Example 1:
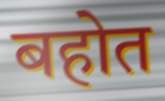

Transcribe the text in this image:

बहोत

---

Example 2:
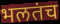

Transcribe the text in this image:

भलतंच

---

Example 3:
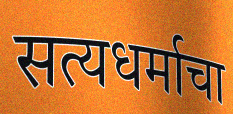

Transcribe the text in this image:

सत्यधर्माचा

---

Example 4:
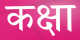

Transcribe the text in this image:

कक्षा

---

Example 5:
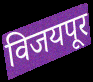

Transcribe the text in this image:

विजयपूर